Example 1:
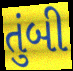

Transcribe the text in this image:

તુંબી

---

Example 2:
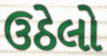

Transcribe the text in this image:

ઉઠેલો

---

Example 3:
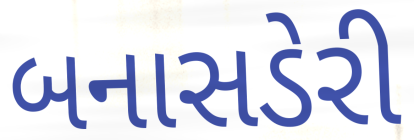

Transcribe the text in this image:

બનાસડેરી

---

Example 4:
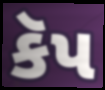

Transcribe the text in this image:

કૅપ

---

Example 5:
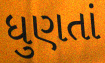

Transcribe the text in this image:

ધુણતાં